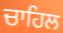
ਚਾਹਿਲ